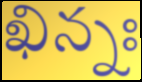
ఖిన్నః